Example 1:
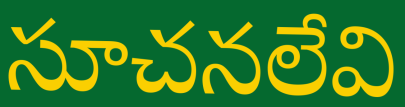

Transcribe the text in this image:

సూచనలేవి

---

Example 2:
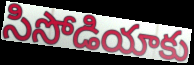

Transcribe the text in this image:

సిసోడియాకు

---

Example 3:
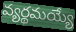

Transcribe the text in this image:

వ్యర్థమయ్యే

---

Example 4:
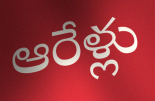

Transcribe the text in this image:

ఆరేళ్లు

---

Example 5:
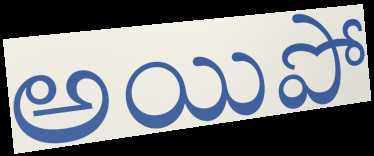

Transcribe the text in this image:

అయిపో